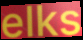
elks